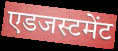
एडजस्टमेंट